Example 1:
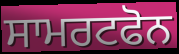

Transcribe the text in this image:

ਸਾਮਰਟਫੋਨ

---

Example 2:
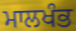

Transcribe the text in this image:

ਮਾਲਖੰਭ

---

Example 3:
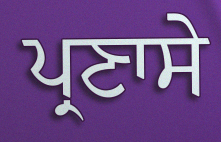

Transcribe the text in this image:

ਪ੍ਰਣਾਸੇ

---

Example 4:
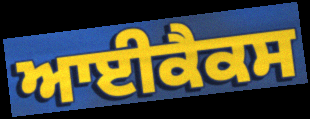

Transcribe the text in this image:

ਆਈਕੈਕਸ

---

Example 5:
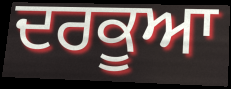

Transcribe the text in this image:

ਦਰਕੂਆ